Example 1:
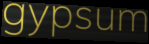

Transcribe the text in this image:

gypsum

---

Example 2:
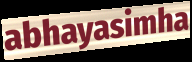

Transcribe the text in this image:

abhayasimha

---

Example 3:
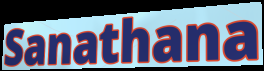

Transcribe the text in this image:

Sanathana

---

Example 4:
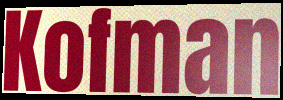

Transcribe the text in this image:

Kofman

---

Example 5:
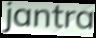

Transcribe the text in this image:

jantra